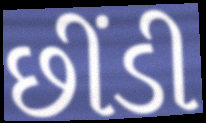
છીંડી